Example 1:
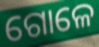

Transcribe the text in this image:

ଗୋଳେ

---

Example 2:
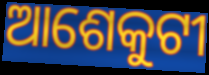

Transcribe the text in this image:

ଆଶେକୁଟୀ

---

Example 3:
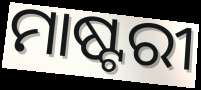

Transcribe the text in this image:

ମାଷ୍ଟରୀ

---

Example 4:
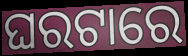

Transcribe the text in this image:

ଘରଟାରେ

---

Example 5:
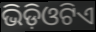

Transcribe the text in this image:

ଭିଡ଼ିଓଟିଏ